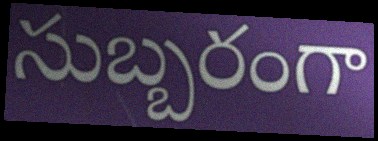
సుబ్బరంగా